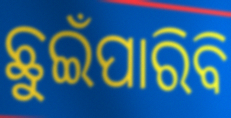
ଛୁଇଁପାରିବି